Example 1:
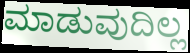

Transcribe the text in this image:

ಮಾಡುವುದಿಲ್ಲ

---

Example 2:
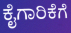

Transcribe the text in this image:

ಕೈಗಾರಿಕೆಗೆ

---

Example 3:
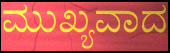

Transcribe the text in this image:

ಮುಖ್ಯವಾದ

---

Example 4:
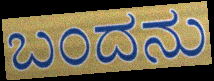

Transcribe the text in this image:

ಬಂದನು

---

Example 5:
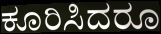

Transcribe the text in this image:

ಕೂರಿಸಿದರೂ